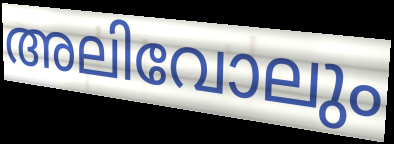
അലിവോലും